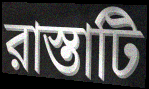
রাস্তাটি